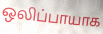
ஒலிப்பாயாக